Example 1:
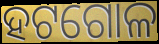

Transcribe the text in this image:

ହଟଗୋଳ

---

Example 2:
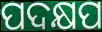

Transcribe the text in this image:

ପଦକ୍ଷପ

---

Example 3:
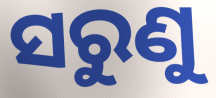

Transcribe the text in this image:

ସରୁଣୁ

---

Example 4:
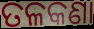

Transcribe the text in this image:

ତଳକଣା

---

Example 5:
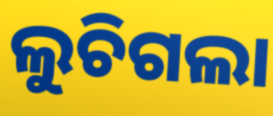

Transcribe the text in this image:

ଲୁଚିଗଲା